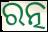
ରତ୍ନ